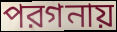
পরগনায়